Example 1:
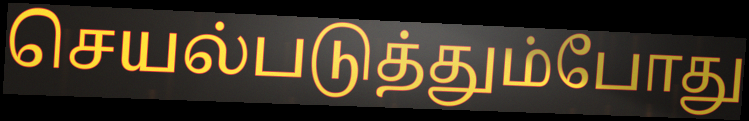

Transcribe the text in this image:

செயல்படுத்தும்போது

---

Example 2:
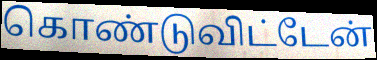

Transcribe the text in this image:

கொண்டுவிட்டேன்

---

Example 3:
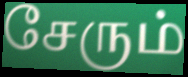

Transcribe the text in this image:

சேரும்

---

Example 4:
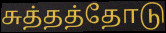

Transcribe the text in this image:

சுத்தத்தோடு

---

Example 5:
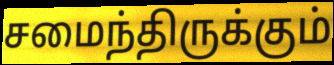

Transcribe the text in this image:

சமைந்திருக்கும்